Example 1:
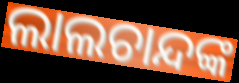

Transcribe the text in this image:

ଲାଲଚାନ୍ଦଙ୍କ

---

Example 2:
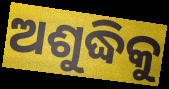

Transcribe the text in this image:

ଅଶୁଦ୍ଧିକୁ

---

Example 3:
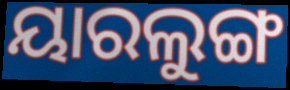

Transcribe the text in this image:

ୟାରଲୁଙ୍ଗ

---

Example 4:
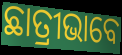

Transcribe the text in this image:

ଛାତ୍ରୀଭାବେ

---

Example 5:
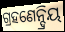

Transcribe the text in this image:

ଗ୍ରହଣେନ୍ଦ୍ରିୟ